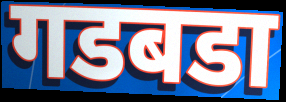
गडबडा